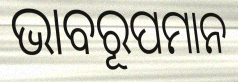
ଭାବରୂପମାନ